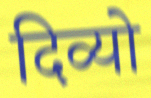
दिव्यो